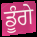
ਡੂੰਗੇ